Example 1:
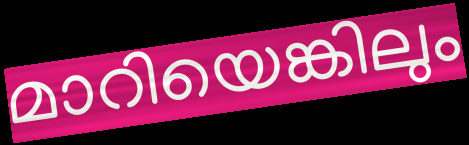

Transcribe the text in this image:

മാറിയെങ്കിലും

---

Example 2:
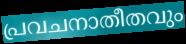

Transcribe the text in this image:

പ്രവചനാതീതവും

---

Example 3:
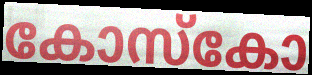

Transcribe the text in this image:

കോസ്കോ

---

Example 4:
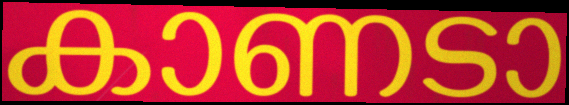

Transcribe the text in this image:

കാണടാ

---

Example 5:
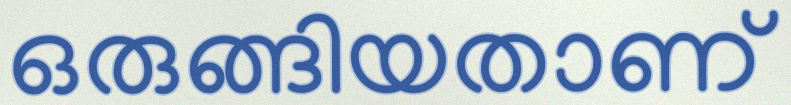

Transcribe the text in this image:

ഒരുങ്ങിയതാണ്